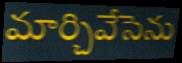
మార్చివేసెను